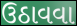
ઉઠાવવા